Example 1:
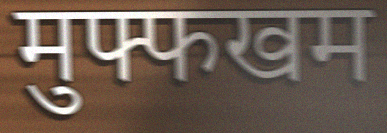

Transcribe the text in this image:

मुफ्फखम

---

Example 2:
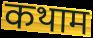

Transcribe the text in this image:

कथाम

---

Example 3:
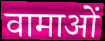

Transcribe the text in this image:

वामाओं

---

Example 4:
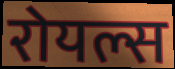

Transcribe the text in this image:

रोयल्स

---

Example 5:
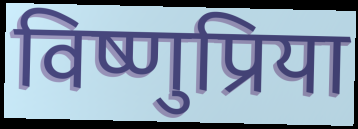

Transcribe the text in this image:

विष्णुप्रिया